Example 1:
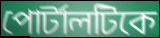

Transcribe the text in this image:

পোর্টালটিকে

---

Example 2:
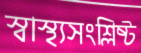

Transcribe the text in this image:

স্বাস্থ্যসংশ্লিষ্ট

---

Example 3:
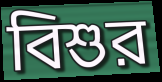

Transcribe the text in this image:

বিশুর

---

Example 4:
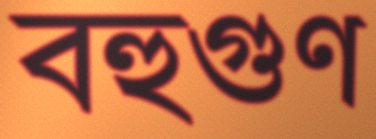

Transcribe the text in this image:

বহুগুণ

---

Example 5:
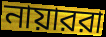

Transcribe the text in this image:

নায়াররা